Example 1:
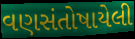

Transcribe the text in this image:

વણસંતોષાયેલી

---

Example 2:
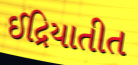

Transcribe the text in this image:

ઈદ્રિયાતીત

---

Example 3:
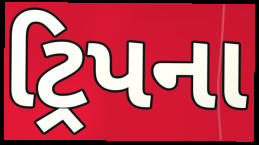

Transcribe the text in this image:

ટ્રિપના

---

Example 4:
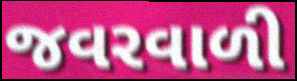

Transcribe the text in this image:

જવરવાળી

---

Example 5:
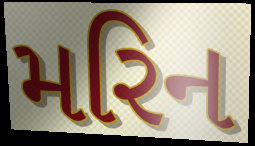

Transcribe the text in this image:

મરિન